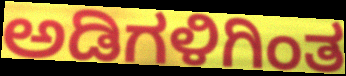
ಅಡಿಗಳಿಗಿಂತ